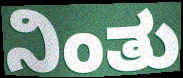
ನಿಂತು